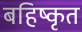
बहिष्कृत